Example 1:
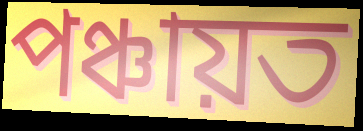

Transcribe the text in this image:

পঞ্চায়ত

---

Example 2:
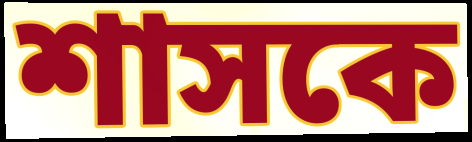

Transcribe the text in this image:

শাসকে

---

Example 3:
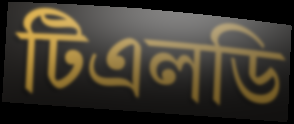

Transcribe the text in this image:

টিএলডি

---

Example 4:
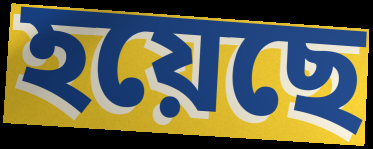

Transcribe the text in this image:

হয়েছে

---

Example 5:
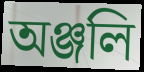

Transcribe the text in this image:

অঞ্জলি